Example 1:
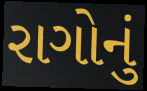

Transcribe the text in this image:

રાગોનું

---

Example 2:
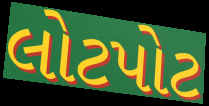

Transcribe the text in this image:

લોટપોટ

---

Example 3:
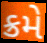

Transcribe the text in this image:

ક્રમે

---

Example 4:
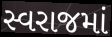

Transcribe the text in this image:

સ્વરાજમાં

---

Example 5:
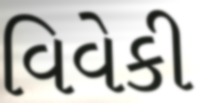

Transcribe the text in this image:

વિવેકી